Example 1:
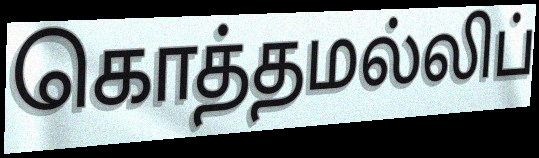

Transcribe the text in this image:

கொத்தமல்லிப்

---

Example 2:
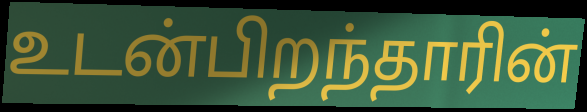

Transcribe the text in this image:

உடன்பிறந்தாரின்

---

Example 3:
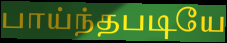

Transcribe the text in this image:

பாய்ந்தபடியே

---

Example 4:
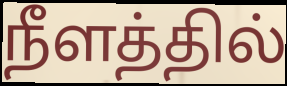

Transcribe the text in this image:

நீளத்தில்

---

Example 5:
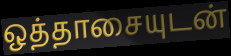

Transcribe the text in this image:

ஒத்தாசையுடன்